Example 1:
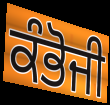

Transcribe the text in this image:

ਕੰਭੋਜੀ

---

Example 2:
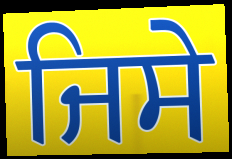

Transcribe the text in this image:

ਜਿਸੇ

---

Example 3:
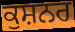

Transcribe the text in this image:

ਕੁਸ਼ਨਰ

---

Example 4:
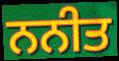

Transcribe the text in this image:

ਨਨੀਤ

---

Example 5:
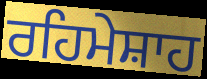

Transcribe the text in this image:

ਰਹਿਮੇਸ਼ਾਹ